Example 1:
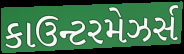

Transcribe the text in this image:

કાઉન્ટરમેઝર્સ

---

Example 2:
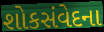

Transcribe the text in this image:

શોકસંવેદના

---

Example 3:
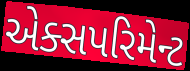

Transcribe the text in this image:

એક્સપરિમેન્ટ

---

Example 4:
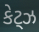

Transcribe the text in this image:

કેટ્ઝ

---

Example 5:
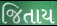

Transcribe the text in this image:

જિતાય